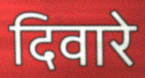
दिवारे